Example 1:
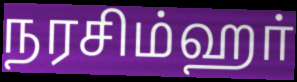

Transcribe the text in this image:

நரசிம்ஹர்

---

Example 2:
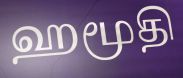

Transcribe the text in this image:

ஹமூதி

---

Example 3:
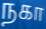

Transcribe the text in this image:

நகா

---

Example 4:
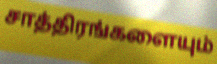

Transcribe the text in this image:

சாத்திரங்களையும்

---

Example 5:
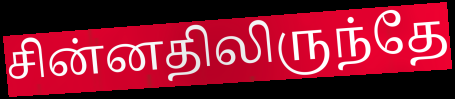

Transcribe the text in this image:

சின்னதிலிருந்தே